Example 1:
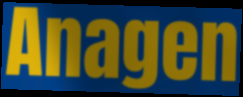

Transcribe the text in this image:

Anagen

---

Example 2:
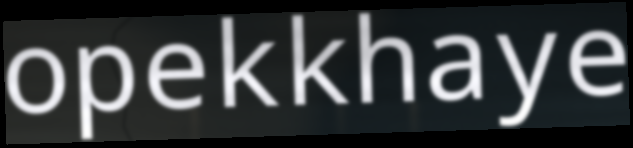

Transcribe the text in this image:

opekkhaye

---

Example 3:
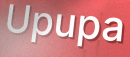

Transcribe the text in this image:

Upupa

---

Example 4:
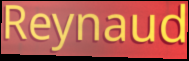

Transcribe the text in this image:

Reynaud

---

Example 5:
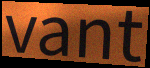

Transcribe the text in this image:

vant